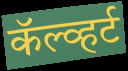
कॅल्व्हर्ट